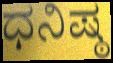
ಧನಿಷ್ಠ